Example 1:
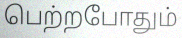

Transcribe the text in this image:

பெற்றபோதும்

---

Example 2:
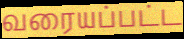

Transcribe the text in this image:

வரையப்பட்ட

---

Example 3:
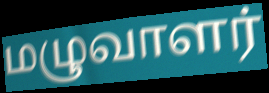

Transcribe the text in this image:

மழுவாளர்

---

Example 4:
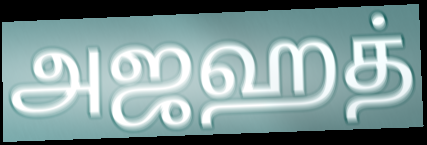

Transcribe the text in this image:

அஜஹத்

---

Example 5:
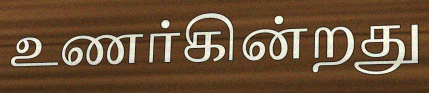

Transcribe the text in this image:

உணர்கின்றது